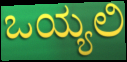
ಒಯ್ಯಲಿ